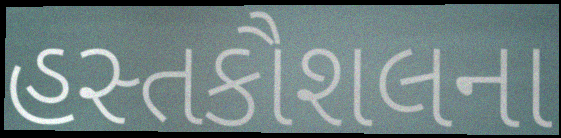
હસ્તકૌશલના